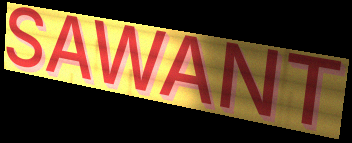
SAWANT